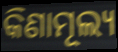
କିଣାମୂଲ୍ୟ